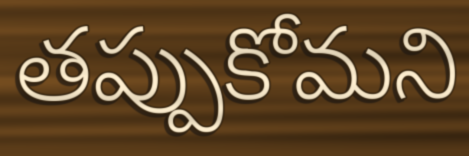
తప్పుకోమని